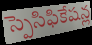
స్పెసిఫికేషన్ల